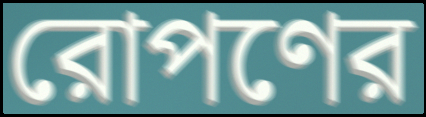
রোপণের